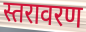
स्तरावरण